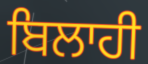
ਬਿਲਾਹੀ